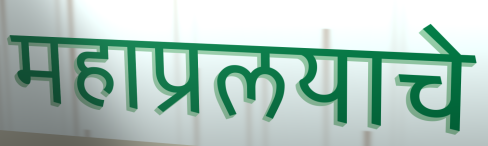
महाप्रलयाचे